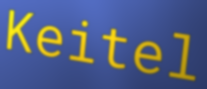
Keitel